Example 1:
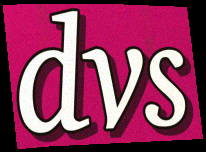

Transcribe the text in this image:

dvs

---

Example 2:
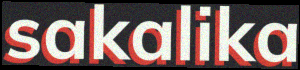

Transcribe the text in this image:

sakalika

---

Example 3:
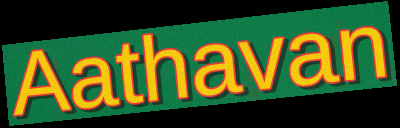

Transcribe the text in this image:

Aathavan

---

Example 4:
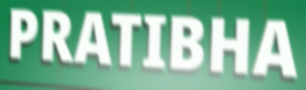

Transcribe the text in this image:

PRATIBHA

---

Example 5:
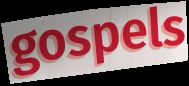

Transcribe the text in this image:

gospels